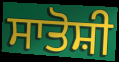
ਸਾਤੋਸ਼ੀ